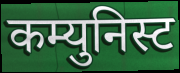
कम्युनिस्ट